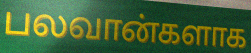
பலவான்களாக